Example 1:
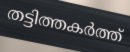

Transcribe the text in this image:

തട്ടിത്തകർത്ത്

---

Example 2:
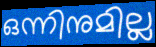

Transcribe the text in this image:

ഒന്നിനുമില്ല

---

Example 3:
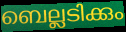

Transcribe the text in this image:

ബെല്ലടിക്കും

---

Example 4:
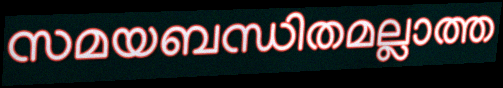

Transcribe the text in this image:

സമയബന്ധിതമല്ലാത്ത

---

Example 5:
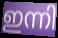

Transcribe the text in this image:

ഇന്നി